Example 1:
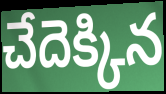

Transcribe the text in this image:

చేదెక్కిన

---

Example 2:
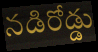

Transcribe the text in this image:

నడిరోడ్డు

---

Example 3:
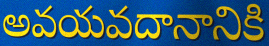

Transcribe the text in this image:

అవయవదానానికి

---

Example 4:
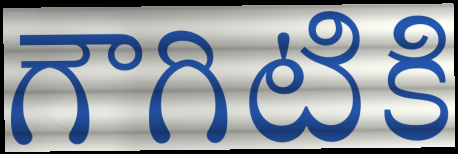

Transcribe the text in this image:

గౌగిటికి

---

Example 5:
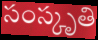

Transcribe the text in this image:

సంస్కృతి